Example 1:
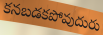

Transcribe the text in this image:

కనబడకపోవుదురు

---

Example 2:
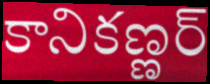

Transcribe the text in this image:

కానికణ్ణర్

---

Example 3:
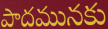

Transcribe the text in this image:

పాదమునకు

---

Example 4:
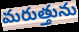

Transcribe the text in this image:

మరుత్తును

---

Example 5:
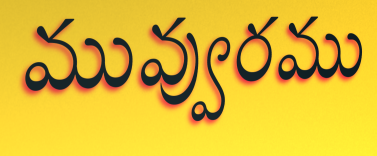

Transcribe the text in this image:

మువ్వురము